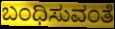
ಬಂಧಿಸುವಂತೆ